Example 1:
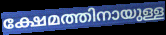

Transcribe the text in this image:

ക്ഷേമത്തിനായുള്ള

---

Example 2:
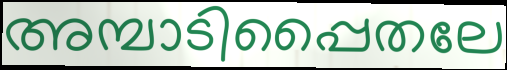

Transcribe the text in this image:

അമ്പാടിപ്പൈതലേ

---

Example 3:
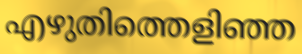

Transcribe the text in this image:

എഴുതിത്തെളിഞ്ഞ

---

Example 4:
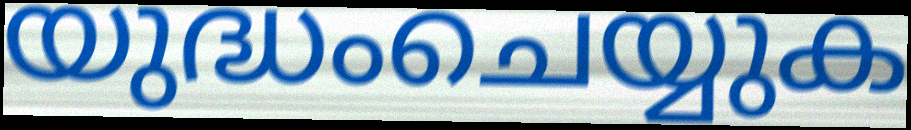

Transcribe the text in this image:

യുദ്ധംചെയ്യുക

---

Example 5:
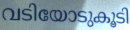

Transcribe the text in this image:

വടിയോടുകൂടി